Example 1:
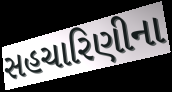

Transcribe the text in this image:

સહચારિણીના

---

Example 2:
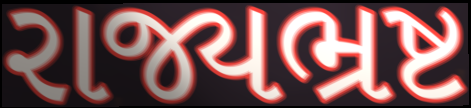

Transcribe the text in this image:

રાજ્યભ્રષ્ટ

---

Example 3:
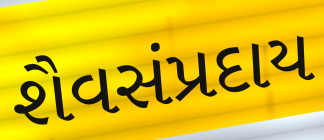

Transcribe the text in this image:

શૈવસંપ્રદાય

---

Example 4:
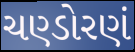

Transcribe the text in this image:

ચણ્ડોરણં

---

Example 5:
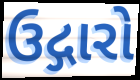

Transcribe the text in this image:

ઉદ્ગારો